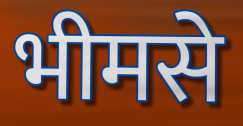
भीमसे